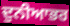
ਦੁਨੀਆਭਰ